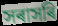
সৰাসৰি